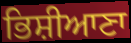
ਭਿਸ਼ੀਆਣਾ